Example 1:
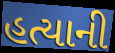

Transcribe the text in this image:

હત્યાની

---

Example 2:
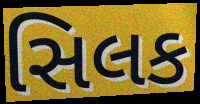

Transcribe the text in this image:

સિલક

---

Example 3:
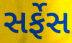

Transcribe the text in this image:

સર્ફેસ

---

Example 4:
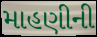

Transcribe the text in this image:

માહણીની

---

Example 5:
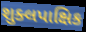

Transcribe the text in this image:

શુક્લપાક્ષિક